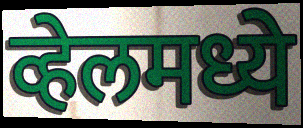
व्हेलमध्ये